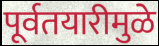
पूर्वतयारीमुळे